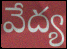
వేద్య